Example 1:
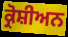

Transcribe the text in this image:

ਕ੍ਰੋਸ਼ੀਅਨ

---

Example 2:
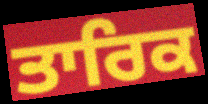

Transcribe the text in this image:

ਤਾਰਿਕ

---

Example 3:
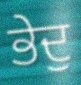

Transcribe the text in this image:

ਭੇਦੁ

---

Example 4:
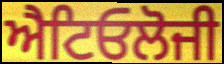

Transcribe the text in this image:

ਐਟਿਓਲੋਜੀ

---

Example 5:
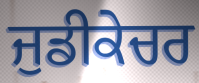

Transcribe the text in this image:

ਜੁਡੀਕੇਚਰ